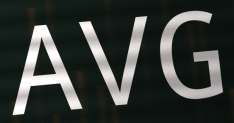
AVG